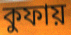
কুফায়